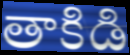
తాకిడి